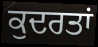
ਕੁਦਰਤਾਂ